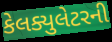
કેલક્યુલેટરની